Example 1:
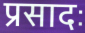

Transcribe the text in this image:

प्रसादः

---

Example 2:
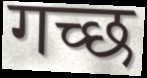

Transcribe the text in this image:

गच्छ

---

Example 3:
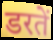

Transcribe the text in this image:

डरतें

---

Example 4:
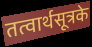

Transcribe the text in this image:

तत्वार्थसूत्रके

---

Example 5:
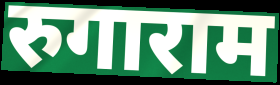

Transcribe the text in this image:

रुगाराम